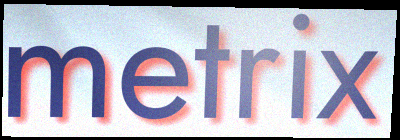
metrix